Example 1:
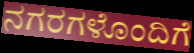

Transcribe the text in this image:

ನಗರಗಳೊಂದಿಗೆ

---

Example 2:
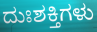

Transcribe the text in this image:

ದುಃಶಕ್ತಿಗಳು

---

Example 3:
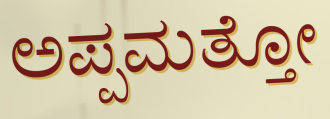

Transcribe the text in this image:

ಅಪ್ಪಮತ್ತೋ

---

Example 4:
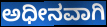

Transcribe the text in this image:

ಅಧೀನವಾಗಿ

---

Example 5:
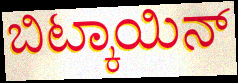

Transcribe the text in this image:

ಬಿಟ್ಕಾಯಿನ್